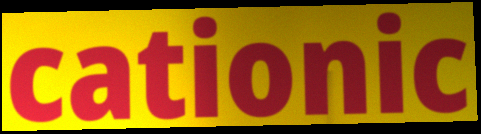
cationic